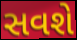
સવશે